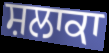
ਸ਼ਲਾਕਾ